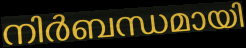
നിർബന്ധമായി